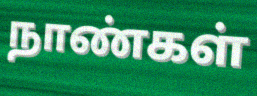
நாண்கள்